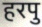
हरपु